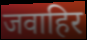
जवाहिर